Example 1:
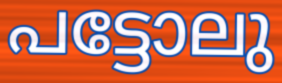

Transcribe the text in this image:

പട്ടോലു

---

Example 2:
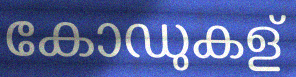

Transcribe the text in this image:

കോഡുകള്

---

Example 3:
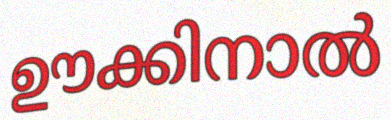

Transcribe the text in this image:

ഊക്കിനാൽ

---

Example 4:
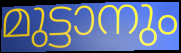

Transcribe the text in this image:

മുട്ടാനും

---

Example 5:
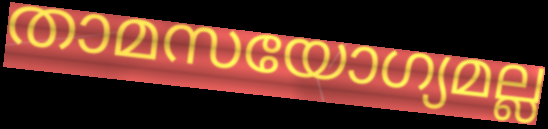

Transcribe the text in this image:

താമസയോഗ്യമല്ല